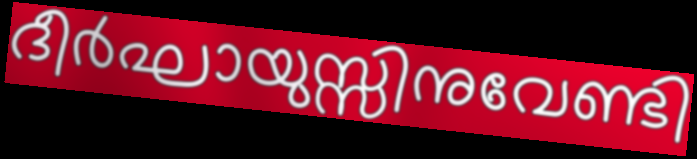
ദീർഘായുസ്സിനുവേണ്ടി